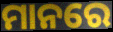
ମାନରେ